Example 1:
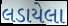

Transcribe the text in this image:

લડાયેલા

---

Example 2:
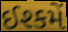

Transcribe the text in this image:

ઈશ્કમેં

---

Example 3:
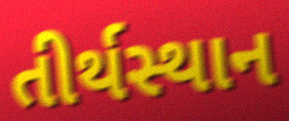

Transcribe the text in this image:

તીર્થસ્થાન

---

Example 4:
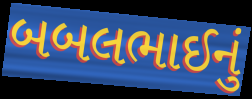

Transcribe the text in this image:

બબલભાઈનું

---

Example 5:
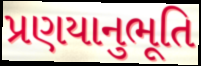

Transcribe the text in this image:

પ્રણયાનુભૂતિ